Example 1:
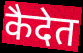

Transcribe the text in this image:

कैदेत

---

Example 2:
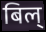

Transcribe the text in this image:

बिल्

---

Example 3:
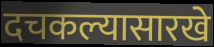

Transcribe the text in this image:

दचकल्यासारखे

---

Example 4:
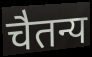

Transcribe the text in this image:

चैतन्य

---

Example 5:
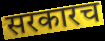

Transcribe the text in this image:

सरकारच